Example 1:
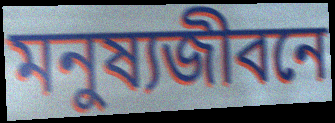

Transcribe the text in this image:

মনুষ্যজীবনে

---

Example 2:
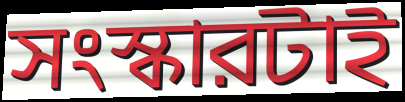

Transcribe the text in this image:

সংস্কারটাই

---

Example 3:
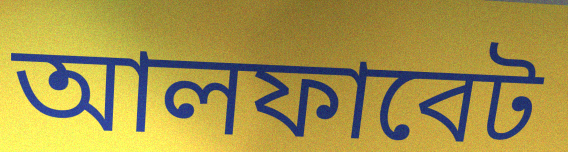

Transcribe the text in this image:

আলফাবেট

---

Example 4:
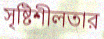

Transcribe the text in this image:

সৃষ্টিশীলতার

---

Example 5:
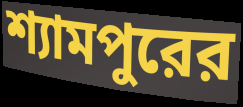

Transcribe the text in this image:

শ্যামপুরের